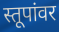
स्तूपांवर